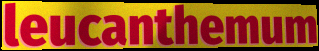
leucanthemum